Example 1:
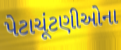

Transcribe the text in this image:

પેટાચૂંટણીઓના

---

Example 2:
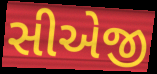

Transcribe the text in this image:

સીએજી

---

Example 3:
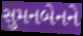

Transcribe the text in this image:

સુમનબેનને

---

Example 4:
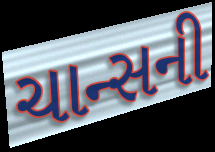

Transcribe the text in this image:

ચાન્સની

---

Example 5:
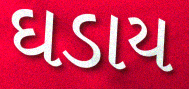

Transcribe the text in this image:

ઘડાય